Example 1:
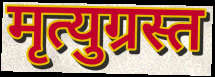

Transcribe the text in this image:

मृत्युग्रस्त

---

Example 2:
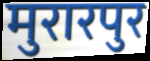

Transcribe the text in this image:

मुरारपुर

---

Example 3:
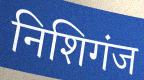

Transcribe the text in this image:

निशिगंज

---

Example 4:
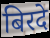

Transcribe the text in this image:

बिरदे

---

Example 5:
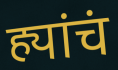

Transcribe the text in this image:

ह्यांचं